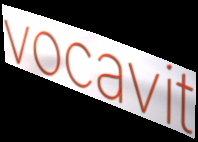
vocavit